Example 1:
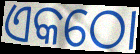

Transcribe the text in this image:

ଏକଠୋ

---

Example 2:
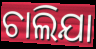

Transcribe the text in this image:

ଚାଲିଯା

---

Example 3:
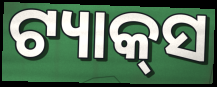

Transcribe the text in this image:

ଟ୍ୟାକ୍‌ସ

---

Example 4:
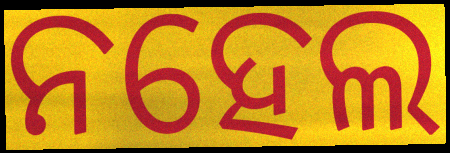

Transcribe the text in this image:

ନହେଲ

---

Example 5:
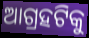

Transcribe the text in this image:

ଆଗ୍ରହଟିକୁ